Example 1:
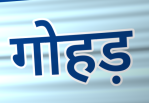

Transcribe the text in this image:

गोहड़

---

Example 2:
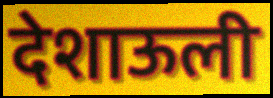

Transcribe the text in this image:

देशाऊली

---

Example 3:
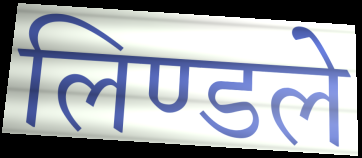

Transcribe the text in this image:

लिण्डले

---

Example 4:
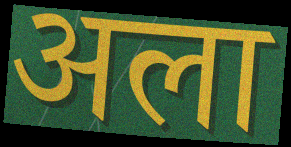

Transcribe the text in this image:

अला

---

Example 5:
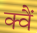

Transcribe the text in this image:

क्वैं